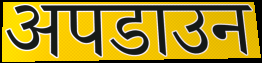
अपडाउन